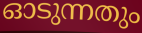
ഓടുന്നതും